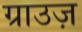
ग्राउज़